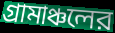
গ্রামাঞ্চলের